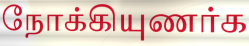
நோக்கியுணர்க